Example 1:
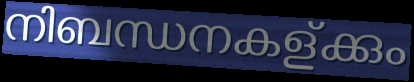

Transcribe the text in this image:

നിബന്ധനകള്ക്കും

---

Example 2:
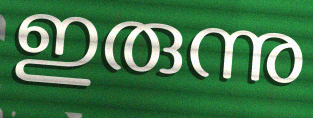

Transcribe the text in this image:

ഇരുന്നു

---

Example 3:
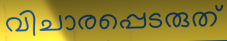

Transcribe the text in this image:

വിചാരപ്പെടരുത്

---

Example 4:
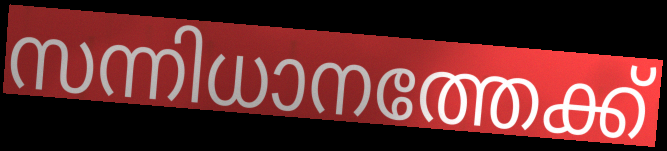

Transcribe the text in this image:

സന്നിധാനത്തേക്ക്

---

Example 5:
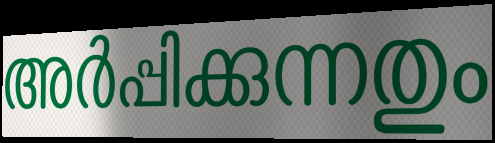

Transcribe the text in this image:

അർപ്പിക്കുന്നതും